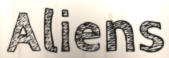
Aliens